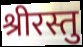
श्रीरस्तु